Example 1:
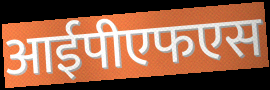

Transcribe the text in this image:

आईपीएफएस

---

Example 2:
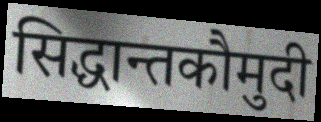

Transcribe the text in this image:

सिद्धान्तकौमुदी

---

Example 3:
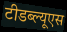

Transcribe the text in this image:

टीडब्ल्यूएस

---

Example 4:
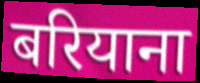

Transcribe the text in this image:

बरियाना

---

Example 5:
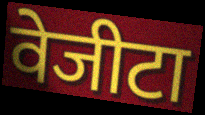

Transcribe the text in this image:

वेजीटा